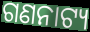
ଗଣନାଟ୍ୟ